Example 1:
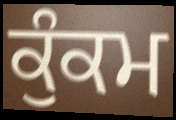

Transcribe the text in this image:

ਕੁੰਕਮ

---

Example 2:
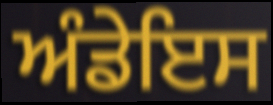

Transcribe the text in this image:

ਅੰਡੇਇਸ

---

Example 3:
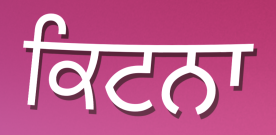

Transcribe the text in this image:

ਕਿਟਨਾ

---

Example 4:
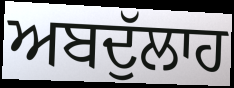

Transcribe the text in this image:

ਅਬਦੁੱਲਾਹ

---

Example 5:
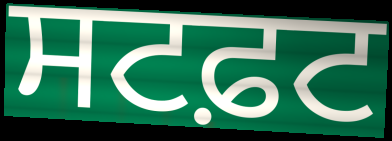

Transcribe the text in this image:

ਸਟਫ਼ਟ